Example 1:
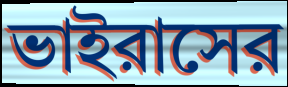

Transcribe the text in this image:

ভাইরাসের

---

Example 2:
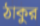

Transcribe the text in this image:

ঠাকুর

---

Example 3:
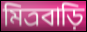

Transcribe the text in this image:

মিত্রবাড়ি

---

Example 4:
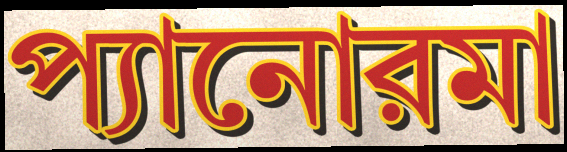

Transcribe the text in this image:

প্যানোরমা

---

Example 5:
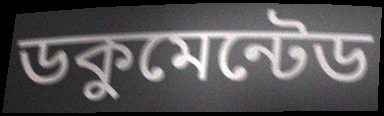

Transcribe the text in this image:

ডকুমেন্টেড